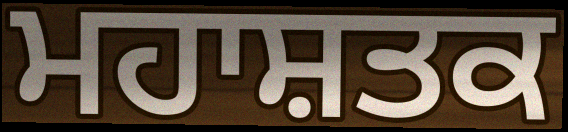
ਮਹਾਸ਼ਤਕ